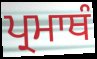
ਪ੍ਰਮਾਥੰ